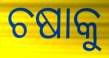
ଚଷାକୁ